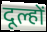
दूल्हों